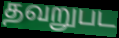
தவறுபட